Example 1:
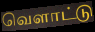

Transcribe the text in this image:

வெளாட்டு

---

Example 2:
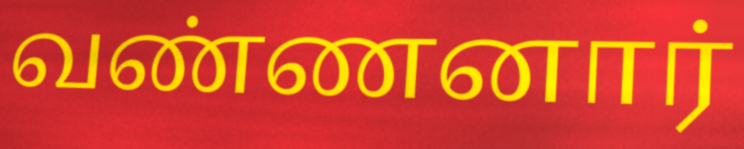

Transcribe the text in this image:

வண்ணனார்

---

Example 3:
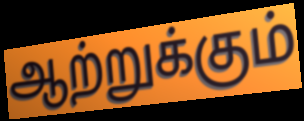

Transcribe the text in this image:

ஆற்றுக்கும்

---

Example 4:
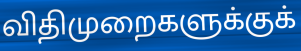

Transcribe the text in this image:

விதிமுறைகளுக்குக்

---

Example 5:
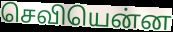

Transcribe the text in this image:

செவியென்ன